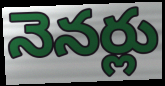
నెనర్లు